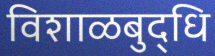
विशाळबुद्धि